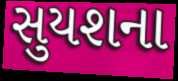
સુયશના